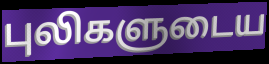
புலிகளுடைய